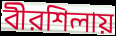
বীরশিলায়